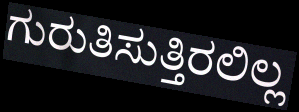
ಗುರುತಿಸುತ್ತಿರಲಿಲ್ಲ